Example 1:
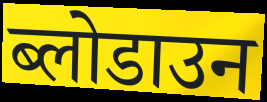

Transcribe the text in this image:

ब्लोडाउन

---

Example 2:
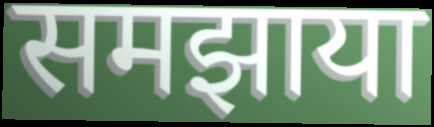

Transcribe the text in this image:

समझाया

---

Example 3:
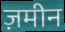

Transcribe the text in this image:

ज़मीन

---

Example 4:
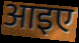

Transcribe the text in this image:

आइए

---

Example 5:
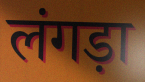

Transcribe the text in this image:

लंगड़ा